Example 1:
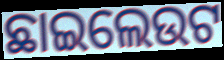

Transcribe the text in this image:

ଛାଇଲେଉଟ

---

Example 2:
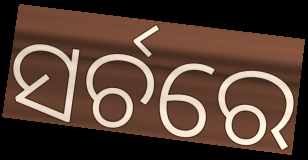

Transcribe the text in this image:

ସର୍ଚରେ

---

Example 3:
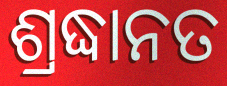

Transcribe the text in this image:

ଶ୍ରଦ୍ଧାନତ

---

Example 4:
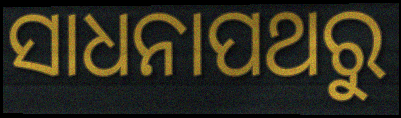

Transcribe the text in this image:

ସାଧନାପଥରୁ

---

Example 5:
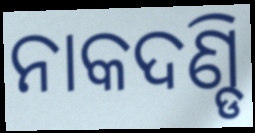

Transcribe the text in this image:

ନାକଦଣ୍ଡି